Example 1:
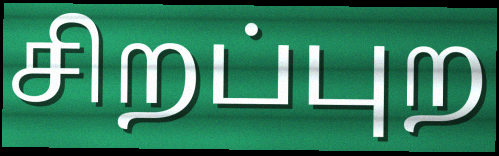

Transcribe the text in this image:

சிறப்புற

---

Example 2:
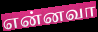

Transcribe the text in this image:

என்னவா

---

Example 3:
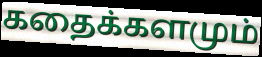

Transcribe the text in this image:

கதைக்களமும்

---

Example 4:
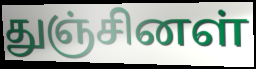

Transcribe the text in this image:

துஞ்சினள்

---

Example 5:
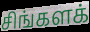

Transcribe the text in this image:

சிங்களக்